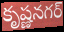
కృష్ణనగర్